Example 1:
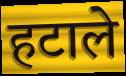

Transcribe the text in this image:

हटाले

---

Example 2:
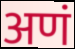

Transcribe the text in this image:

अणं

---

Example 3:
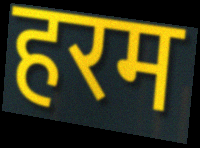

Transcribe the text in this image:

हरम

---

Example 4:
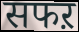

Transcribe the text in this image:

सफऱ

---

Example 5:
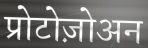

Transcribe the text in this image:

प्रोटोज़ोअन